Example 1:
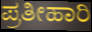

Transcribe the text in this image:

ಪ್ರತೀಹಾರಿ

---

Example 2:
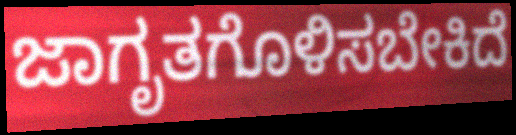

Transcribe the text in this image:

ಜಾಗೃತಗೊಳಿಸಬೇಕಿದೆ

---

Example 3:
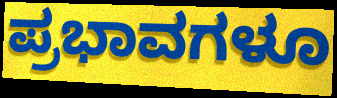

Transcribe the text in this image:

ಪ್ರಭಾವಗಳೂ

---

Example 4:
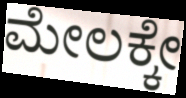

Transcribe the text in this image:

ಮೇಲಕ್ಕೇ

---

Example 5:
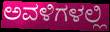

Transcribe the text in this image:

ಅವಳಿಗಳಲ್ಲಿ